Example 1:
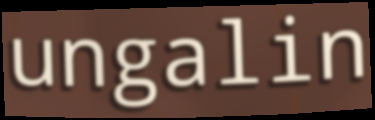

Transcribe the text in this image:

ungalin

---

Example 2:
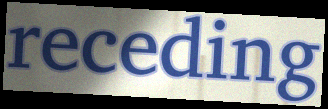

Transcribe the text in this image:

receding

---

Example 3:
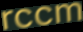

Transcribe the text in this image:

rccm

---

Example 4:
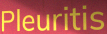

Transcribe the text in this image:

Pleuritis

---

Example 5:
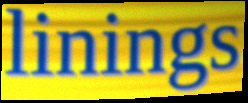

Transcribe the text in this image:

linings